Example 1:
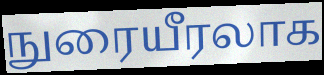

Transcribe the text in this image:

நுரையீரலாக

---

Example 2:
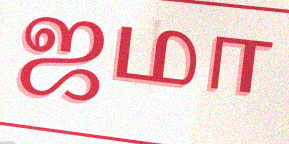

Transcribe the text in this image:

ஜமா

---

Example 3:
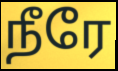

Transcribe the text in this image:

நீரே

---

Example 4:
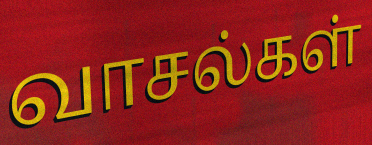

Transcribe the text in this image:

வாசல்கள்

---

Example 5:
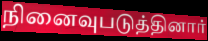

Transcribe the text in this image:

நினைவுபடுத்தினார்